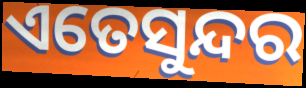
ଏତେସୁନ୍ଦର